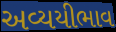
અવ્યયીભાવ